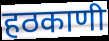
हठकाणी